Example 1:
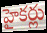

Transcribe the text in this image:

హైకర్లు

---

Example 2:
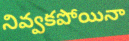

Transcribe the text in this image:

నివ్వకపోయినా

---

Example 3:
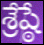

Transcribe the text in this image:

శ్రేష్ఠే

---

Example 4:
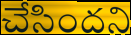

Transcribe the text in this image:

చేసిందని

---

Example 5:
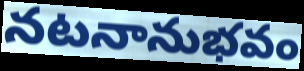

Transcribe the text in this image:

నటనానుభవం